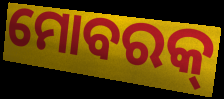
ମୋବରକ୍